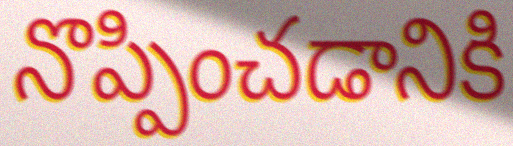
నొప్పించడానికి